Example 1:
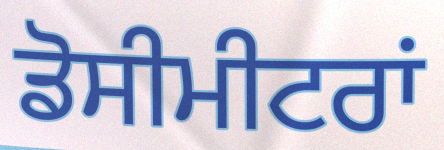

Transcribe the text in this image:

ਡੋਸੀਮੀਟਰਾਂ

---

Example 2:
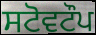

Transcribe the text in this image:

ਸਟੋਵਟੌਪ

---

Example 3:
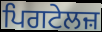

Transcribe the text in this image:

ਪਿਗਟੇਲਜ਼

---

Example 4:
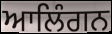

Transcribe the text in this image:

ਆਲਿੰਗਨ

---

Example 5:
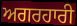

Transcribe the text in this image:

ਅਗਰਹਾਰੀ